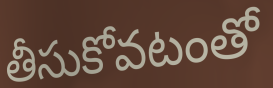
తీసుకోవటంతో